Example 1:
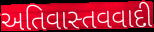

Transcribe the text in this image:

અતિવાસ્તવવાદી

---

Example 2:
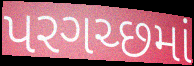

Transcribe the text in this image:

પરગચ્છમાં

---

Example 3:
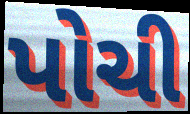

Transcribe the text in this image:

પોચી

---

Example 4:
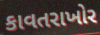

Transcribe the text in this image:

કાવતરાખોર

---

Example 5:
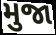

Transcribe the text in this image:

મુજા